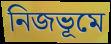
নিজভূমে